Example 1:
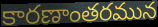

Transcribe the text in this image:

కారణాంతరమున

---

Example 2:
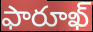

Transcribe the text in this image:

ఫారూఖ్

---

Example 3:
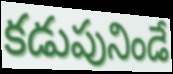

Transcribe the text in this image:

కడుపునిండే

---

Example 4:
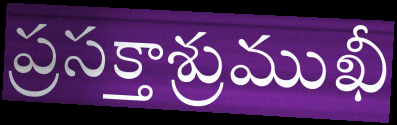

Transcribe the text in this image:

ప్రసక్తాశ్రుముఖీ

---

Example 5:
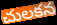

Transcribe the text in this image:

చులకన